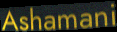
Ashamani